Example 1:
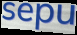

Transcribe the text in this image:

sepu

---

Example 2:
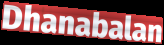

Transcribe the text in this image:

Dhanabalan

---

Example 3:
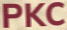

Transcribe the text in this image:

PKC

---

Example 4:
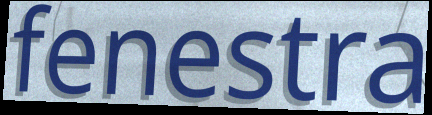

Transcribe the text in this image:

fenestra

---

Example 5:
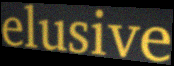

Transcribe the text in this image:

elusive